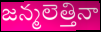
జన్మలెత్తినా